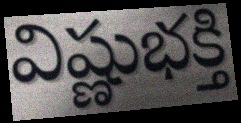
విష్ణుభక్తి